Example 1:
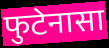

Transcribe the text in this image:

फुटेनासा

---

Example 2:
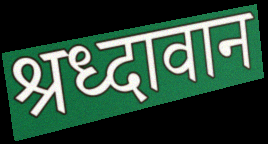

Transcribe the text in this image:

श्रध्दावान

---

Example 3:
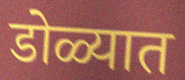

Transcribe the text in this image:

डोळ्यात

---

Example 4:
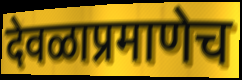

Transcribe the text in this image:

देवळाप्रमाणेच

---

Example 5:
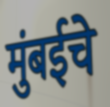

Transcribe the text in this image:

मुंबईचे